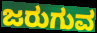
ಜರುಗುವ